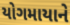
યોગમાયાને